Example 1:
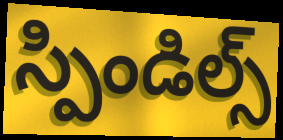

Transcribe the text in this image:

స్పిండిల్స్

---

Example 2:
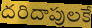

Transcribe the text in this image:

దరిదాపులకే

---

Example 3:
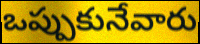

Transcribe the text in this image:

ఒప్పుకునేవారు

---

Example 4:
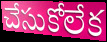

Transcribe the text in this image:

చేసుకోలేక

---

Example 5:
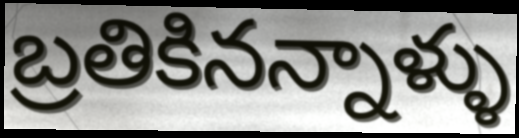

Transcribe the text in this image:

బ్రతికినన్నాళ్ళు